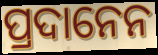
ପ୍ରଦାନେନ